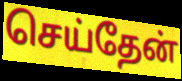
செய்தேன்